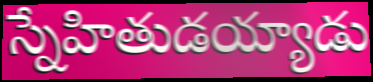
స్నేహితుడయ్యాడు